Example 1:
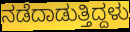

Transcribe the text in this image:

ನಡೆದಾಡುತ್ತಿದ್ದಳು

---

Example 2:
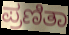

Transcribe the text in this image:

ಪ್ರಣಿತಾ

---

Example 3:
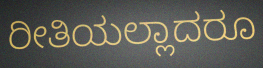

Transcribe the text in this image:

ರೀತಿಯಲ್ಲಾದರೂ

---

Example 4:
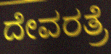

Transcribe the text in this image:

ದೇವರತ್ರೆ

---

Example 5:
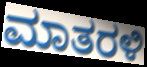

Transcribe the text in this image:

ಮಾತರಳಿ